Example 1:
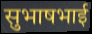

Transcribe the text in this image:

सुभाषभाई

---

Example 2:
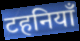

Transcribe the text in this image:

टहनियाँ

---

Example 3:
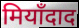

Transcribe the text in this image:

मियाँदाद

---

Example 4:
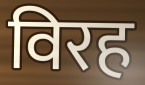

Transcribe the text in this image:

विरह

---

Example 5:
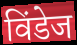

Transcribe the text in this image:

विंडेज